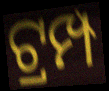
ଟ୍ରମ୍ପ